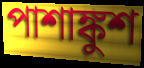
পাশাঙ্কুশ